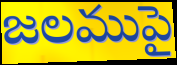
జలముపై